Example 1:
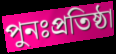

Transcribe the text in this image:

পুনঃপ্রতিষ্ঠা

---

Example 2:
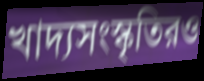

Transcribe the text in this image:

খাদ্যসংস্কৃতিরও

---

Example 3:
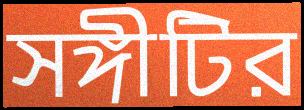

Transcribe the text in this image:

সঙ্গীটির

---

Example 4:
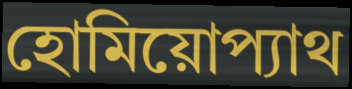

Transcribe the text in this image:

হোমিয়োপ্যাথ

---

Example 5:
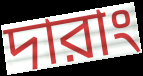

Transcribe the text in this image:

দারাং